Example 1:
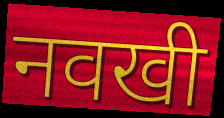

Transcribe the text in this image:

नवखी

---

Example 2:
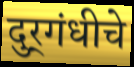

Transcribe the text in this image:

दुर्गंधीचे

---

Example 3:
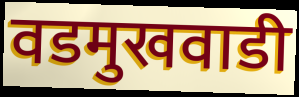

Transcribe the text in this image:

वडमुखवाडी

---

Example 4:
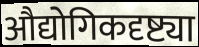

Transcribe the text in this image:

औद्योगिकदृष्ट्या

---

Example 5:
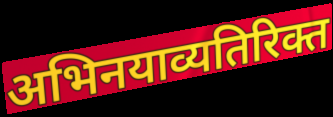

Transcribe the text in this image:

अभिनयाव्यतिरिक्त